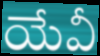
యేవీ